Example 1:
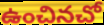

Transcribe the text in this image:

ఉంచినచో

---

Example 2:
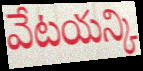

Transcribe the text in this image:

వేటయన్కి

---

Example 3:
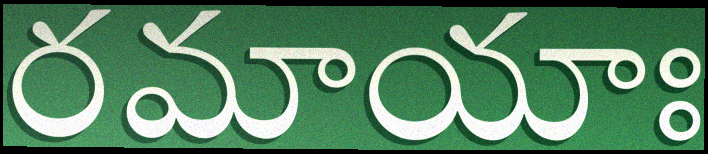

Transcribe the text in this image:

రమాయాః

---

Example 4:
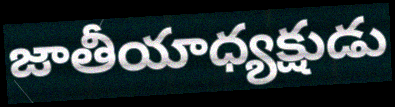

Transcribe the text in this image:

జాతీయాధ్యక్షుడు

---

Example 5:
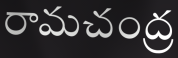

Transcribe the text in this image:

రామచంద్ర